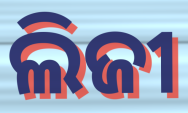
ଲିଜୀ